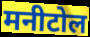
मनीटोल